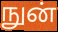
நுன்